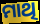
ମାଥି